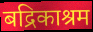
बद्रिकाश्रम